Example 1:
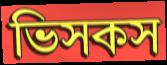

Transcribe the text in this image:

ভিসকস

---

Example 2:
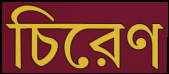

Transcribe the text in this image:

চিরেণ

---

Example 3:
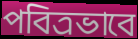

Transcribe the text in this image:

পবিত্রভাবে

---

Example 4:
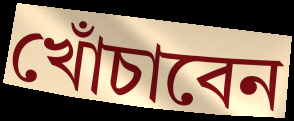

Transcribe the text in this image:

খোঁচাবেন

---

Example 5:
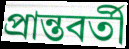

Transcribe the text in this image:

প্রান্তবর্তী